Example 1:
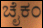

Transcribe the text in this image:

ಚೈಕಂ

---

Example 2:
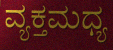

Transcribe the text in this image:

ವ್ಯಕ್ತಮಧ್ಯ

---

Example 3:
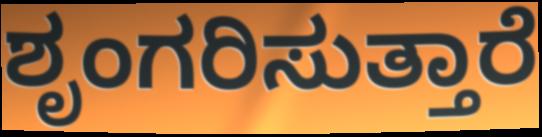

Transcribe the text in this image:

ಶೃಂಗರಿಸುತ್ತಾರೆ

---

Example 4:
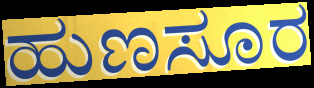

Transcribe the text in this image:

ಹುಣಸೂರ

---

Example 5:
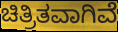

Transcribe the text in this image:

ಚಿತ್ರಿತವಾಗಿವೆ